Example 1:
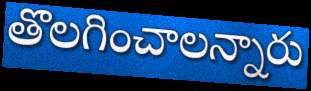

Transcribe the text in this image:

తొలగించాలన్నారు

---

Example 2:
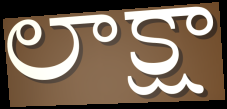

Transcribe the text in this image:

లాక్షా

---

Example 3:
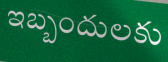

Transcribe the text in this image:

ఇబ్బందులకు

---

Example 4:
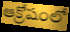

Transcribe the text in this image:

ఆక్రోషంలో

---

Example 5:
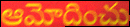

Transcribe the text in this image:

ఆమోదించు